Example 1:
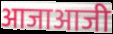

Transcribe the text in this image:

आजाआजी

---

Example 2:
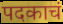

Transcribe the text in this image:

पदकाचं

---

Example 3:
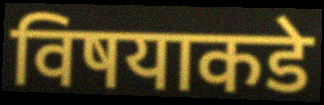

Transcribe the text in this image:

विषयाकडे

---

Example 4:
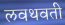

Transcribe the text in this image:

लवथवती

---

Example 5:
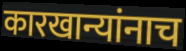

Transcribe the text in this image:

कारखान्यांनाच